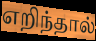
எறிந்தால்